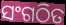
ସଂଗଠିତ